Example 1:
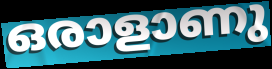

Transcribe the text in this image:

ഒരാളാണു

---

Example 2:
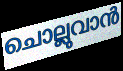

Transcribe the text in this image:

ചൊല്ലുവാൻ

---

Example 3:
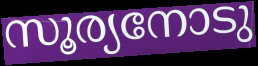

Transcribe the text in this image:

സൂര്യനോടു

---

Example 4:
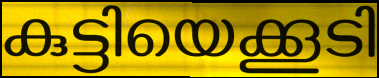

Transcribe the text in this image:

കുട്ടിയെക്കൂടി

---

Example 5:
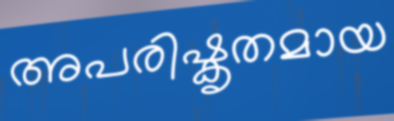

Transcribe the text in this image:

അപരിഷ്കൃതമായ